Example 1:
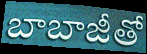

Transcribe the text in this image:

బాబాజీతో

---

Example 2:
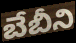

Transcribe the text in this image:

బేబీని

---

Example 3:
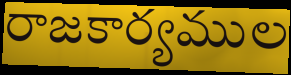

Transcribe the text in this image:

రాజకార్యముల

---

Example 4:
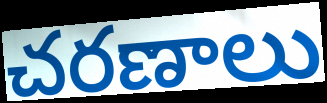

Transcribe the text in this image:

చరణాలు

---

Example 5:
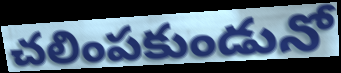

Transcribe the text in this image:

చలింపకుండునో